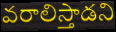
వరాలిస్తాడని